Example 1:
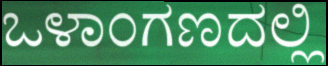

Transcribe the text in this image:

ಒಳಾಂಗಣದಲ್ಲಿ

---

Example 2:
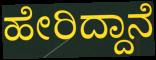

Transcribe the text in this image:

ಹೇರಿದ್ದಾನೆ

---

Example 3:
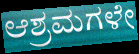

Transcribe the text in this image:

ಆಶ್ರಮಗಳೇ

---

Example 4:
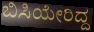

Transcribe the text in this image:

ಬಿಸಿಯೇರಿದ್ದ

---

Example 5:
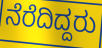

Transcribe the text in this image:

ನೆರೆದಿದ್ದರು